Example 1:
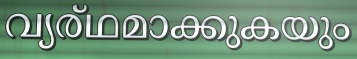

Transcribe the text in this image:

വ്യര്ഥമാക്കുകയും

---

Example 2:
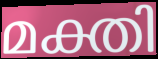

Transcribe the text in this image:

മക്തി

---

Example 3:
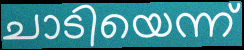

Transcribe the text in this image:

ചാടിയെന്ന്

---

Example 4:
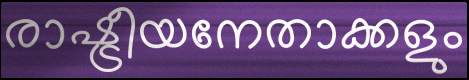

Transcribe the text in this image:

രാഷ്ട്രീയനേതാക്കളും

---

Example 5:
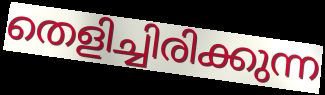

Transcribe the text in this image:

തെളിച്ചിരിക്കുന്ന